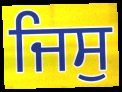
ਜਿਸੁ